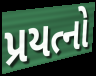
પ્રયત્નો